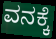
ವನಕ್ಕೆ